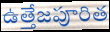
ఉత్తేజపూరిత